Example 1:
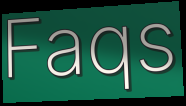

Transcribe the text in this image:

Faqs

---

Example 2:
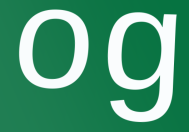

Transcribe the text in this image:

og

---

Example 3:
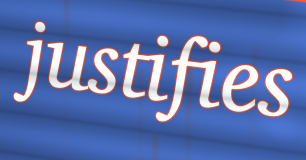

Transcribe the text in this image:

justifies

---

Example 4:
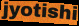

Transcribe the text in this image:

jyotishi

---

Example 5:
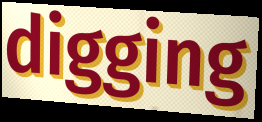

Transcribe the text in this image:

digging